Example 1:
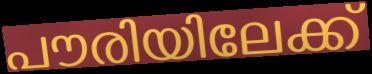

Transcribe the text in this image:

പൗരിയിലേക്ക്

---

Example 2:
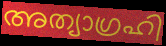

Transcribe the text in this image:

അത്യാഗ്രഹി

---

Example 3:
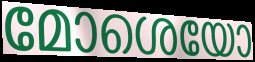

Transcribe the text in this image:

മോശെയോ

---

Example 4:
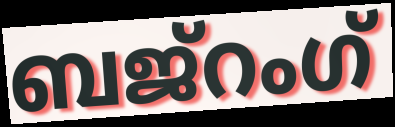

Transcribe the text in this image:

ബജ്റംഗ്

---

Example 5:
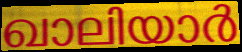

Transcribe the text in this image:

ഖാലിയാർ